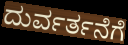
ದುರ್ವರ್ತನೆಗೆ